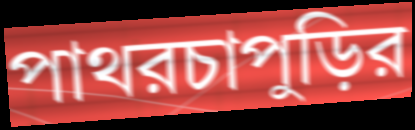
পাথরচাপুড়ির